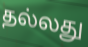
தல்லது